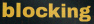
blocking